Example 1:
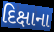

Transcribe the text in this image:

દિક્ષાના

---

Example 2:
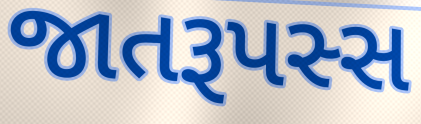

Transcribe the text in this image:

જાતરૂપસ્સ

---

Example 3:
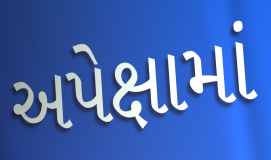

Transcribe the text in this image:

અપેક્ષામાં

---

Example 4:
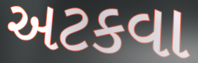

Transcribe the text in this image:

અટકવા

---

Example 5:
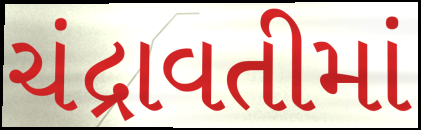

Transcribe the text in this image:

ચંદ્રાવતીમાં